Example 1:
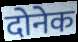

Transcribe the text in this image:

दोनेक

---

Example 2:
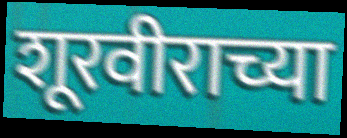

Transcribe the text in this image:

शूरवीराच्या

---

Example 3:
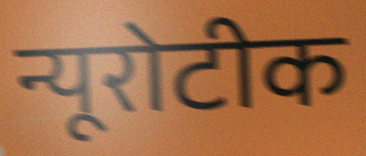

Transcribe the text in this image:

न्यूरोटीक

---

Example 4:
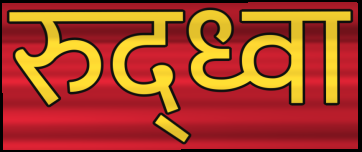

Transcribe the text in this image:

रुद्ध्वा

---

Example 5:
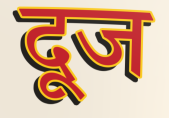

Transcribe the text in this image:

दूज